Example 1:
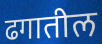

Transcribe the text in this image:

ढगातील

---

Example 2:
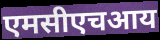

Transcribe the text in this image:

एमसीएचआय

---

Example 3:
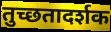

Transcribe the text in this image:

तुच्छतादर्शक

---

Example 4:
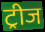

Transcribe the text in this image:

ट्रीज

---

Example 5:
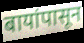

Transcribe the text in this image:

बायांपासून